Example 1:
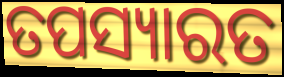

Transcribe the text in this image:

ତପସ୍ୟାରତ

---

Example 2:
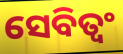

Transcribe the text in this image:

ସେବିତ୍ୱଂ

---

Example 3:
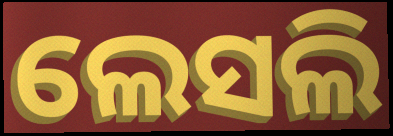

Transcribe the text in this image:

ଲେସଲି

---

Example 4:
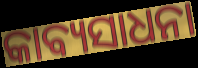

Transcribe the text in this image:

କାବ୍ୟସାଧନା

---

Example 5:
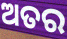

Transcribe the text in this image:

ଅତର